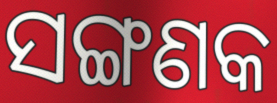
ସଙ୍ଗଣକ